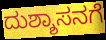
ದುಶ್ಶಾಸನಗೆ